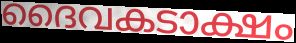
ദൈവകടാക്ഷം